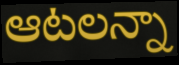
ఆటలన్నా